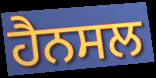
ਹੈਨਸਲ